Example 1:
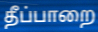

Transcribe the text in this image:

தீப்பாறை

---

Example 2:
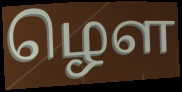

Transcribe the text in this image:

ழௌ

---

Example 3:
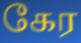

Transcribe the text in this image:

கேர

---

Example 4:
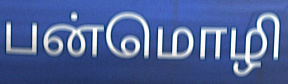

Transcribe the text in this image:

பன்மொழி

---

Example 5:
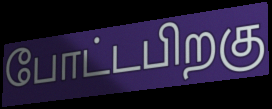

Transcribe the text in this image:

போட்டபிறகு